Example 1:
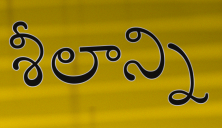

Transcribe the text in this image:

శీలాన్ని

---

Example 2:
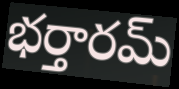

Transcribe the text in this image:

భర్తారమ్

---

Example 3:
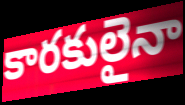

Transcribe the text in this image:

కారకులైనా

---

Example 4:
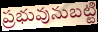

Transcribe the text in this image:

ప్రభువునుబట్టి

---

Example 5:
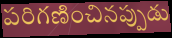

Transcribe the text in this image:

పరిగణించినప్పుడు